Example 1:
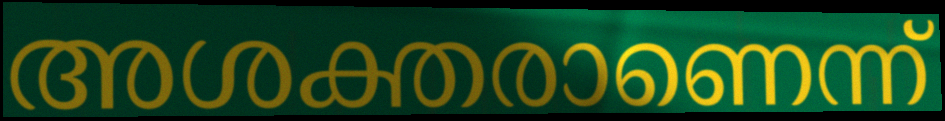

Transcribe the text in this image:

അശക്തരാണെന്ന്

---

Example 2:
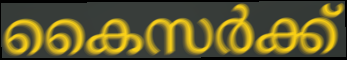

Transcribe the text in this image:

കൈസർക്ക്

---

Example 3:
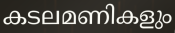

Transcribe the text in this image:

കടലമണികളും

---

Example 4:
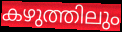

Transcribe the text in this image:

കഴുത്തിലും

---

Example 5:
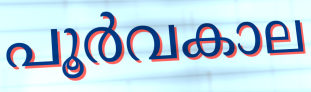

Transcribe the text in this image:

പൂർവകാല